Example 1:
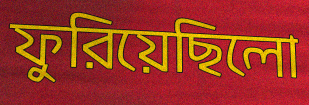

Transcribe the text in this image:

ফুরিয়েছিলো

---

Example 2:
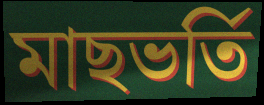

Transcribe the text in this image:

মাছভর্তি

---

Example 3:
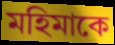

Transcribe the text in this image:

মহিমাকে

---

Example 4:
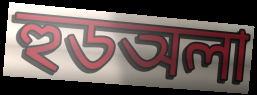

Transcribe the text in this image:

হুডঅলা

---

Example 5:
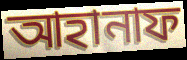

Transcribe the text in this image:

আহানাফ